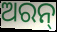
ଅରନ୍